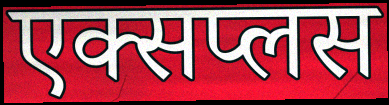
एक्सप्लस